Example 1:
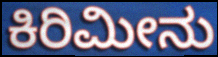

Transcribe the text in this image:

ಕಿರಿಮೀನು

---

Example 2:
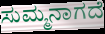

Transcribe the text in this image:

ಸುಮ್ಮನಾಗದೆ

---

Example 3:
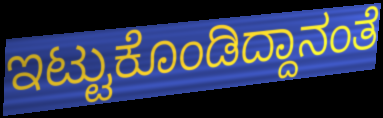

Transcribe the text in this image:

ಇಟ್ಟುಕೊಂಡಿದ್ದಾನಂತೆ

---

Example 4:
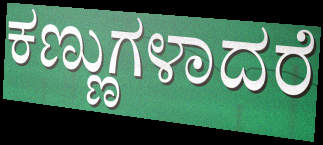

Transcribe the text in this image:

ಕಣ್ಣುಗಳಾದರೆ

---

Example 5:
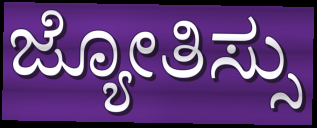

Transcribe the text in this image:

ಜ್ಯೋತಿಸ್ಸು